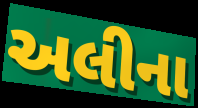
અલીના